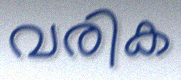
വരിക